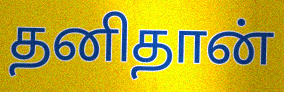
தனிதான்